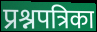
प्रश्नपत्रिका